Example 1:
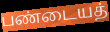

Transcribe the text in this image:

பண்டையத்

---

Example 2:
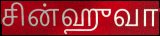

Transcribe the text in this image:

சின்ஹுவா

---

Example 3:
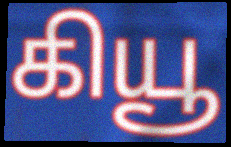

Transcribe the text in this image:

கியூ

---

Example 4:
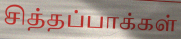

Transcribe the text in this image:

சித்தப்பாக்கள்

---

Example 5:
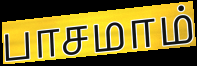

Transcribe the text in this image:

பாசமாம்